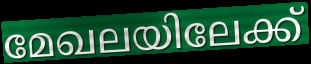
മേഖലയിലേക്ക്